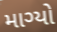
માગ્યો